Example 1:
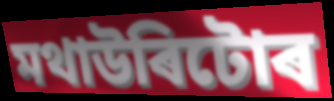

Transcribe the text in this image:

মথাউৰিটোৰ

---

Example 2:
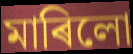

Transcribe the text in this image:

মাৰিলো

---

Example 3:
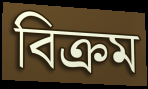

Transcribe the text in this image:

বিক্ৰম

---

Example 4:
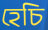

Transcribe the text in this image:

হেচি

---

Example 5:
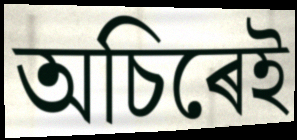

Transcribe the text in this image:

অচিৰেই